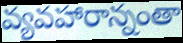
వ్యవహారాన్నంతా